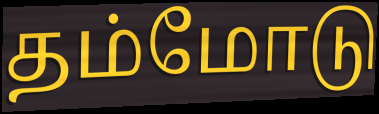
தம்மோடு